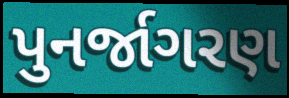
પુનર્જાગરણ